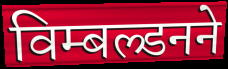
विम्बल्डनने